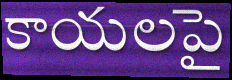
కాయలపై